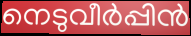
നെടുവീർപ്പിൻ